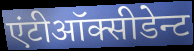
एंटीऑक्सीडेन्ट